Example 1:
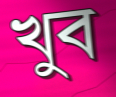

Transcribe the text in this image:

খুব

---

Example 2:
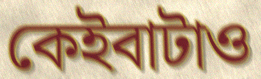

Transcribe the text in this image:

কেইবাটাও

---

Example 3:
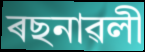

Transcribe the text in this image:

ৰছনাৱলী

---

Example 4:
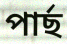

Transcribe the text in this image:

পাৰ্ছ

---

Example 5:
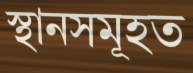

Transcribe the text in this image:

স্থানসমূহত